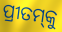
ପ୍ରୀତମ୍‌କୁ